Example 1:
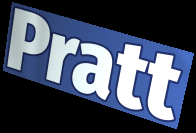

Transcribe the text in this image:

Pratt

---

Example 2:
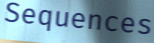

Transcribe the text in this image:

Sequences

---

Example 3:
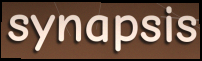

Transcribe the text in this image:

synapsis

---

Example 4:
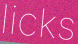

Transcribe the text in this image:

licks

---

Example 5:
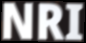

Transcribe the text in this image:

NRI